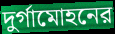
দুর্গামোহনের